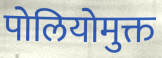
पोलियोमुक्त